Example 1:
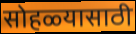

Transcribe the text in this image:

सोहळ्यासाठी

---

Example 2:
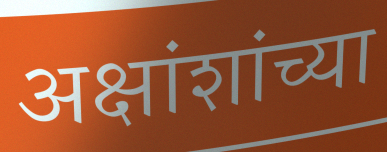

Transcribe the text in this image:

अक्षांशांच्या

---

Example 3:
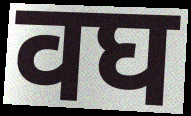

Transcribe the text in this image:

वघ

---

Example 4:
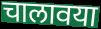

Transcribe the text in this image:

चालावया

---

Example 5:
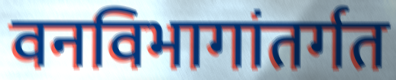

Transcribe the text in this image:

वनविभागांतर्गत